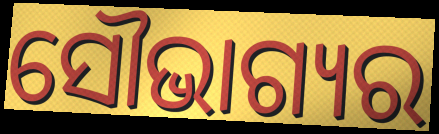
ସୌଭାଗ୍ୟର